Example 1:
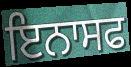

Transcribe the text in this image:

ਇਨਾਸਫ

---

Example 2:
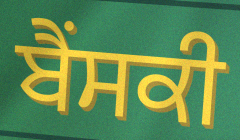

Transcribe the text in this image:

ਬੈਂਸਕੀ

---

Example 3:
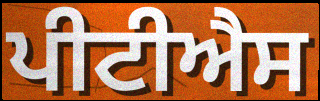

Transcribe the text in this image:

ਪੀਟੀਐਸ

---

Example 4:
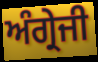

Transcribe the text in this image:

ਅੰਗ੍ਰੇਜੀ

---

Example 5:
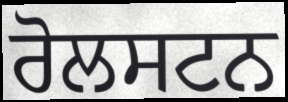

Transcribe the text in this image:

ਰੋਲਸਟਨ